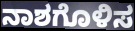
ನಾಶಗೊಳಿಸ